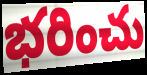
భరించు